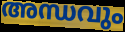
അന്ധവും